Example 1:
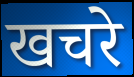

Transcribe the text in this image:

खचरे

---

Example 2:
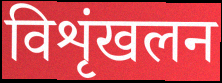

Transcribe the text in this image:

विशृंखलन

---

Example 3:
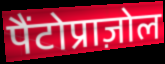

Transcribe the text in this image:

पैंटोप्राज़ोल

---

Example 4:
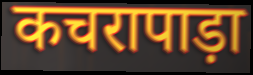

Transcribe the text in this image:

कचरापाड़ा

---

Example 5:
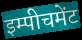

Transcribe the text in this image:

इम्पीचमेंट